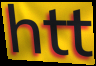
htt